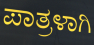
ಪಾತ್ರಳಾಗಿ